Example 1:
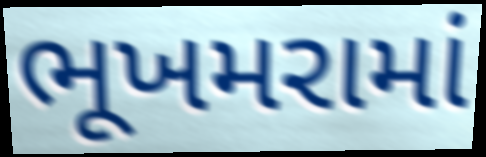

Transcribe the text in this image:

ભૂખમરામાં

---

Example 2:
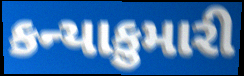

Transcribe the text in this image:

કન્યાકુમારી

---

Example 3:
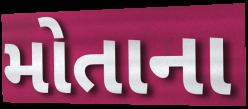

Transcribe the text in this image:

મોતાના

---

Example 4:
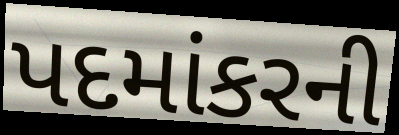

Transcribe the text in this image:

પદમાંકરની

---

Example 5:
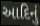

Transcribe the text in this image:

આદિનું